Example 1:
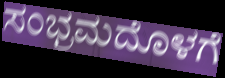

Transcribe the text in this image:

ಸಂಭ್ರಮದೊಳಗೆ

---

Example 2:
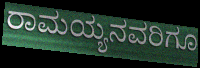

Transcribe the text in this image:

ರಾಮಯ್ಯನವರಿಗೂ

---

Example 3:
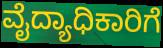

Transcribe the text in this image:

ವೈದ್ಯಾಧಿಕಾರಿಗೆ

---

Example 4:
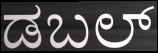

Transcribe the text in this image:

ಡಬಲ್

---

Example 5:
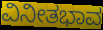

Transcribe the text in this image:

ವಿನೀತಭಾವ